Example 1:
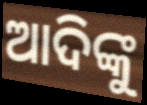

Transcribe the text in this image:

ଆଦିଙ୍କୁ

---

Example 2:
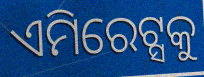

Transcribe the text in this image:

ଏମିରେଟ୍ସକୁ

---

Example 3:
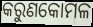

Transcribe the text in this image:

କରୁଣକୋମଳ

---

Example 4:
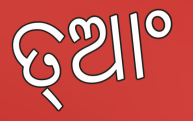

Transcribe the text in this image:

ତ୍ଆଂ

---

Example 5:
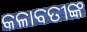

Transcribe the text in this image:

କଳାବତୀଙ୍କ